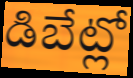
డిబేట్లో